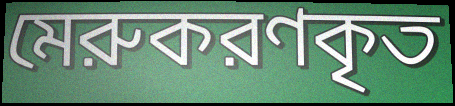
মেরুকরণকৃত